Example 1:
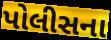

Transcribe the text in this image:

પોલીસના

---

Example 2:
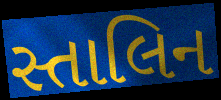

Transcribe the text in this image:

સ્તાલિન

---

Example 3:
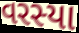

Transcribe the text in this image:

વરસ્યા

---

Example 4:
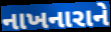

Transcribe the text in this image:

નાખનારાને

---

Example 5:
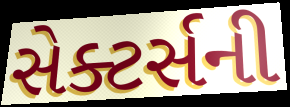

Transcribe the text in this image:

સેક્ટર્સની